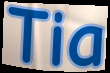
Tia